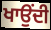
ਖਾਉਂਦੀ